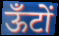
ऊँटों